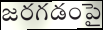
జరగడంపై